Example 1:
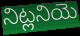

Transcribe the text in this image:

నిట్లనియె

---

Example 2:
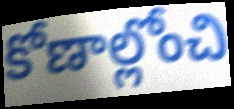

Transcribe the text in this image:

కోణాల్లోంచి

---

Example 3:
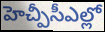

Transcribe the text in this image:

హెచ్పీసీఎల్లో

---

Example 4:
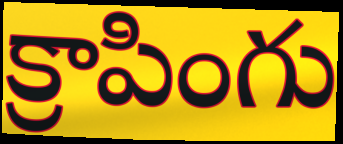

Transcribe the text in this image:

క్రాపింగు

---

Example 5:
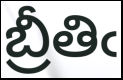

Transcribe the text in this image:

బ్రీతిఁ